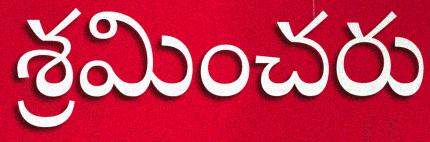
శ్రమించరు